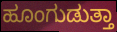
ಹೂಂಗುಡುತ್ತಾ